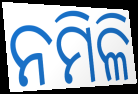
ନମିଳି